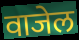
वाजेल